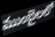
ముంబైలలో